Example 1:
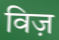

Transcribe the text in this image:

विज़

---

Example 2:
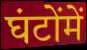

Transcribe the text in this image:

घंटोंमें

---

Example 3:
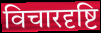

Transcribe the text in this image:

विचारदृष्टि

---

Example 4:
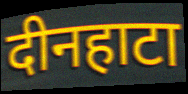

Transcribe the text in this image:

दीनहाटा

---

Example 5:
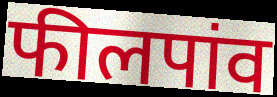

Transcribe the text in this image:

फीलपांव